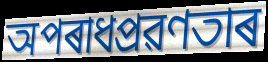
অপৰাধপ্ৰৱণতাৰ